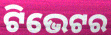
ଟିଭେଟର